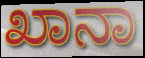
ಖಾನಾ